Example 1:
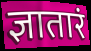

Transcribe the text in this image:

ज्ञातारं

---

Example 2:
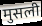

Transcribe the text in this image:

मुसली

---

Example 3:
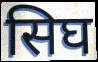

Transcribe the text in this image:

सिघ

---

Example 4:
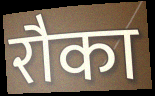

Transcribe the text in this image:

रौका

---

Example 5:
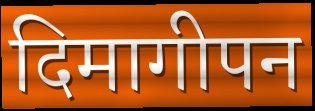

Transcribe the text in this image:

दिमागीपन